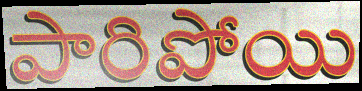
పారిపోయి